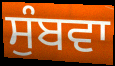
ਸੁੰਬਵਾ